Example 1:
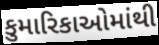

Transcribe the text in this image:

કુમારિકાઓમાંથી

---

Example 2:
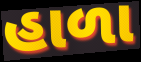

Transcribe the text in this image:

હાળા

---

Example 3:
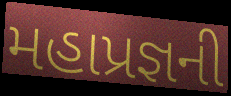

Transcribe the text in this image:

મહાપ્રજ્ઞની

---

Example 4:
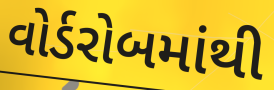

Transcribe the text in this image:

વોર્ડરોબમાંથી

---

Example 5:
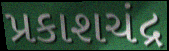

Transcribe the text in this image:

પ્રકાશચંદ્ર